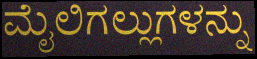
ಮೈಲಿಗಲ್ಲುಗಳನ್ನು